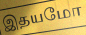
இதயமோ